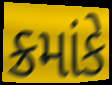
ક્રમાંકે